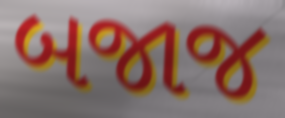
બજાજ